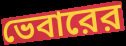
ভেবারের